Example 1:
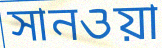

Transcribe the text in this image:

সানওয়া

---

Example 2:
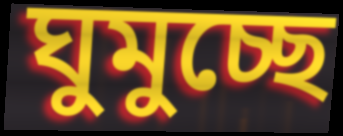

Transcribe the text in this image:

ঘুমুচ্ছে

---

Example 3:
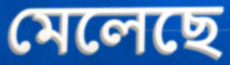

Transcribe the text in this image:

মেলেছে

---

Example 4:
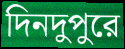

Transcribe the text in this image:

দিনদুপুরে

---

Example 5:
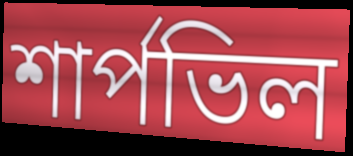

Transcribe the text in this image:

শার্পভিল